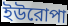
ইউরোপা